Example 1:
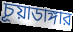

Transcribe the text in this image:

চূয়াডাঙ্গার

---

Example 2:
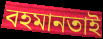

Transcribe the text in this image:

বহমানতাই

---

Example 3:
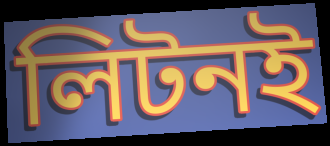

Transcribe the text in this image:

লিটনই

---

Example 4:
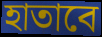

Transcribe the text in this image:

হাতাবে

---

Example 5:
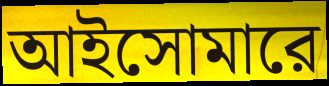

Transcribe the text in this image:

আইসোমারে